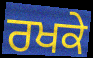
ਰਖਕੇ